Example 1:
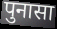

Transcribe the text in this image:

पुनासा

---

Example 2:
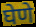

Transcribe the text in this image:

घेणे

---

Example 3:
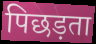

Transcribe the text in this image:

पिछड़ता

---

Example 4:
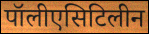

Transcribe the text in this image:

पॉलीएसिटिलीन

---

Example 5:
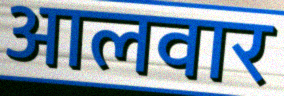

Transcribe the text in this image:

आलवार